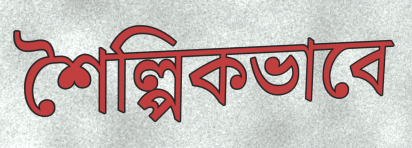
শৈল্পিকভাবে